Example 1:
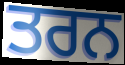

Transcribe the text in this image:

ਤਰਨ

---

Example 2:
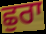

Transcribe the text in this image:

ਛੁਰਾ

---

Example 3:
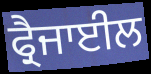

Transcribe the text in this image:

ਫ੍ਰੈਜਾਈਲ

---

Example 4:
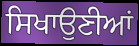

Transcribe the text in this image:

ਸਿਖਾਉਣੀਆਂ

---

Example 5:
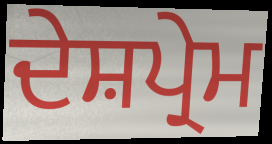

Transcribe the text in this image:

ਦੇਸ਼ਪ੍ਰੇਮ